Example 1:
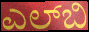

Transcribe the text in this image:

ಎಲ್‌ಬಿ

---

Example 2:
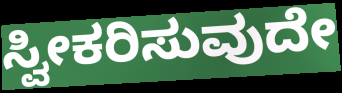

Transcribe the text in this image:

ಸ್ವೀಕರಿಸುವುದೇ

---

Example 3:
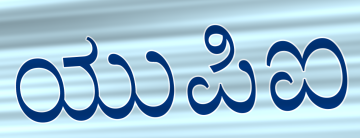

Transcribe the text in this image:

ಯುಪಿಐ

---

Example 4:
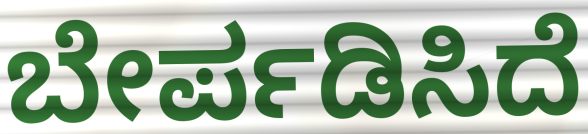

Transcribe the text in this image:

ಬೇರ್ಪಡಿಸಿದೆ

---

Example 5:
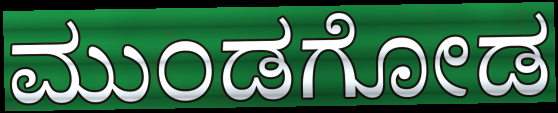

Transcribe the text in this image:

ಮುಂಡಗೋಡ